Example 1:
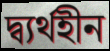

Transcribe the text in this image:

দ্ব্যৰ্থহীন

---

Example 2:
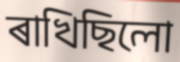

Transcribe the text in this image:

ৰাখিছিলো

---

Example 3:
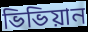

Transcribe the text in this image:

ভিভিয়ান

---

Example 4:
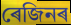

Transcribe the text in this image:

ৰেজিনৰ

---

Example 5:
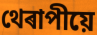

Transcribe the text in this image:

থেৰাপীয়ে